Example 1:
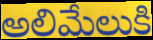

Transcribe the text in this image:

అలిమేలుకి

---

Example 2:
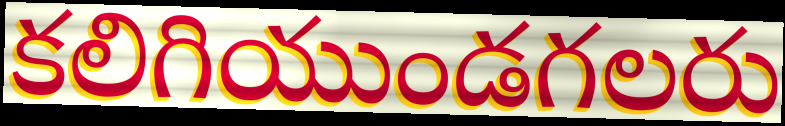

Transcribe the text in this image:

కలిగియుండగలరు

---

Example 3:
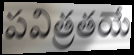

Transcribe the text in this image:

పవిత్రతయే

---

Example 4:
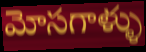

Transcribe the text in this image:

మోసగాళ్ళు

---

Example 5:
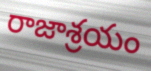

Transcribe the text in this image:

రాజాశ్రయం